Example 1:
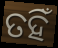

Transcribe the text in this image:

ତହିଁ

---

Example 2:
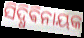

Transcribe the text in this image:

ସିଦ୍ଧିଵିନାୟକ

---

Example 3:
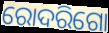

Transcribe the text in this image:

ରୋଦରିଗୋ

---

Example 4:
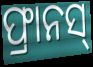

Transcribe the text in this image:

ଫ୍ରାନସ୍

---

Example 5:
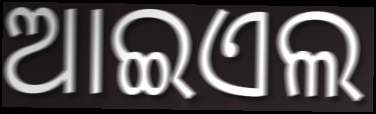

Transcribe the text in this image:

ଆଇଏଲ